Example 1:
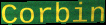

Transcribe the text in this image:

Corbin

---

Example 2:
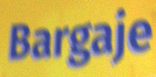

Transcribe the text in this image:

Bargaje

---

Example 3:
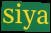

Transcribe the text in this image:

siya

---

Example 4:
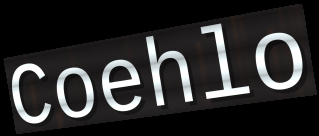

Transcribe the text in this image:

Coehlo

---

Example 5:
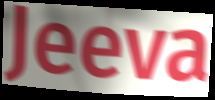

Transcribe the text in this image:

Jeeva